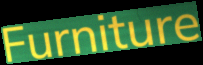
Furniture